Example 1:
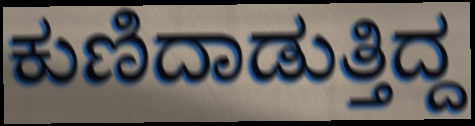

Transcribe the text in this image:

ಕುಣಿದಾಡುತ್ತಿದ್ದ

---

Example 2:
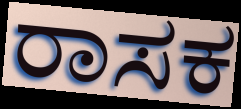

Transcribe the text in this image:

ರಾಸಕ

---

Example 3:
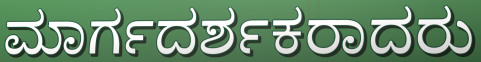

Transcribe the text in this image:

ಮಾರ್ಗದರ್ಶಕರಾದರು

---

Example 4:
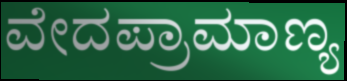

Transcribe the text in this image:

ವೇದಪ್ರಾಮಾಣ್ಯ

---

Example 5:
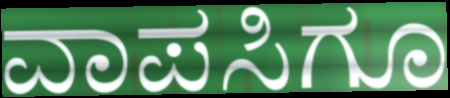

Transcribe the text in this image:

ವಾಪಸಿಗೂ